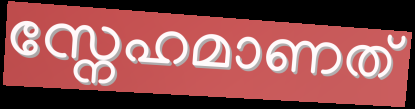
സ്നേഹമാണത്